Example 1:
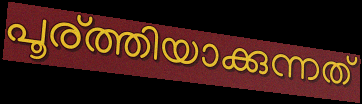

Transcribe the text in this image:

പൂര്ത്തിയാക്കുന്നത്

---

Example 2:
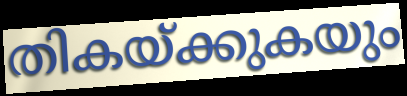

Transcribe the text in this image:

തികയ്ക്കുകയും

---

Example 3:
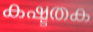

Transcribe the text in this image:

കഷ്ടതക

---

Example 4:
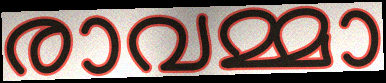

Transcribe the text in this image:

രാവമ്മാ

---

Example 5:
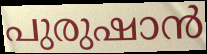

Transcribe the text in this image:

പുരുഷാൻ